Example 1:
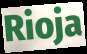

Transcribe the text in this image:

Rioja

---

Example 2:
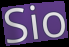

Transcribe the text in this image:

Sio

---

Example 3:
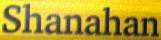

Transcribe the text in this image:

Shanahan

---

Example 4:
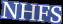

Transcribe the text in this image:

NHFS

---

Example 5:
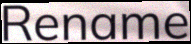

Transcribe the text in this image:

Rename